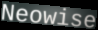
Neowise